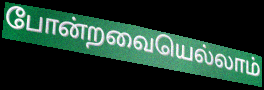
போன்றவையெல்லாம்